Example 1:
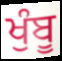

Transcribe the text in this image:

ਖੁੰਬੂ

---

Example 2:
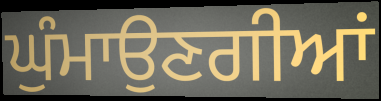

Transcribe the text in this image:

ਘੁੰਮਾਉਣਗੀਆਂ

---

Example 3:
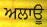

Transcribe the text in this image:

ਅਲਾਊ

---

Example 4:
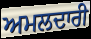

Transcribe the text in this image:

ਅਮਲਦਾਰੀ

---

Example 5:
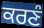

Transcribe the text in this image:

ਕਰਣੰ